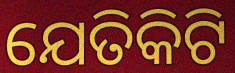
ଯେତିକିଟି